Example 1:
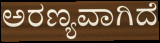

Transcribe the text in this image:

ಅರಣ್ಯವಾಗಿದೆ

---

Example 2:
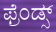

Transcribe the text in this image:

ಫ್ರೆಂಡ್ಸ್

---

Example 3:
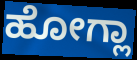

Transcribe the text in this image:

ಹೋಗ್ಲಾ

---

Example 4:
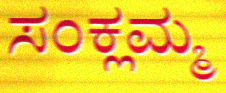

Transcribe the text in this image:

ಸಂಕ್ಲಮ್ಮ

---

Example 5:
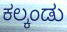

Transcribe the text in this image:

ಕಲ್ಕಂಡು